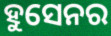
ହୁସେନର